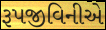
રૂપજીવિનીએ